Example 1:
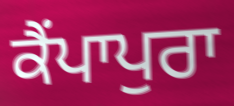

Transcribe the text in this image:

ਕੈਂਪਾਪੁਰਾ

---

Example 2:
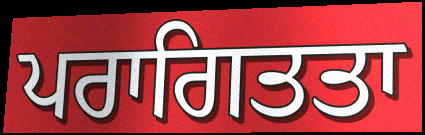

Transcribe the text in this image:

ਪਰਾਗਿਤਤਾ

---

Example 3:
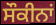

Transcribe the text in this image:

ਸੌਕੀਨਾਂ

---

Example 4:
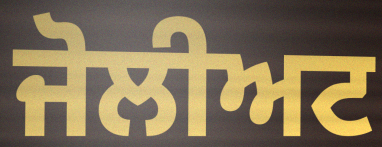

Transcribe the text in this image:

ਜੋਲੀਅਟ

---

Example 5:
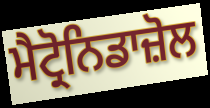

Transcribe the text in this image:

ਮੈਟ੍ਰੋਨਿਡਾਜ਼ੋਲ